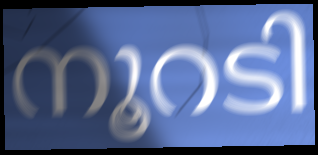
നൂറടി